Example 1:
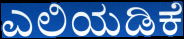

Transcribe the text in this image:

ಎಲಿಯಡಿಕೆ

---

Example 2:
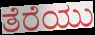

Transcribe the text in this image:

ತೆರೆಯು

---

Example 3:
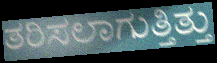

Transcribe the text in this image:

ತರಿಸಲಾಗುತ್ತಿತ್ತು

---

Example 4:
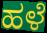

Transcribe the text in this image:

ಹಳೆ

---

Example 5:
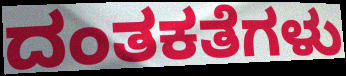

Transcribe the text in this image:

ದಂತಕತೆಗಳು